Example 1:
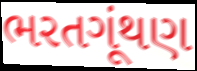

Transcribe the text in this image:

ભરતગૂંથણ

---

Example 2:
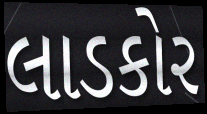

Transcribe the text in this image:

લાડકોર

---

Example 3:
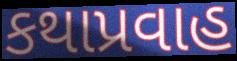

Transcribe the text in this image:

કથાપ્રવાહ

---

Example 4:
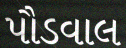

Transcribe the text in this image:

પૌડવાલ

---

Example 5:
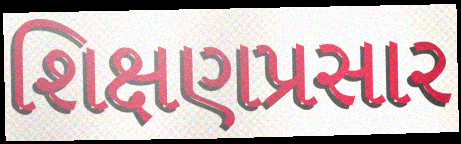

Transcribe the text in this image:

શિક્ષણપ્રસાર